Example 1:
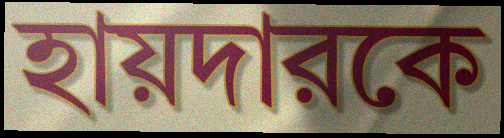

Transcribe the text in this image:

হায়দারকে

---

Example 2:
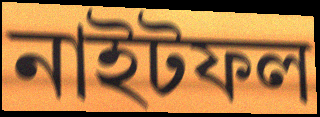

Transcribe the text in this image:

নাইটফল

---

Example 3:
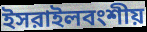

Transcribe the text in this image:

ইসরাইলবংশীয়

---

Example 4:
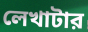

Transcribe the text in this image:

লেখাটার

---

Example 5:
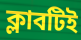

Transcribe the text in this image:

ক্লাবটিই